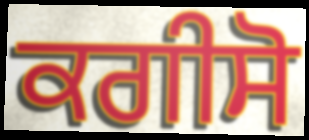
ਕਗੀਸੋ